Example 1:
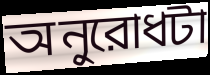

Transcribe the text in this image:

অনুরোধটা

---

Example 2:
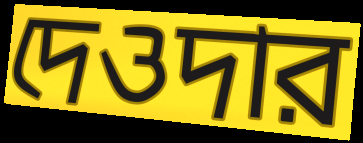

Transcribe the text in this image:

দেওদার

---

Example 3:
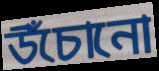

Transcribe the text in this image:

উঁচোনো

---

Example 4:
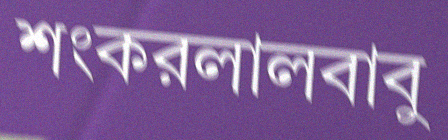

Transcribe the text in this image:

শংকরলালবাবু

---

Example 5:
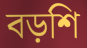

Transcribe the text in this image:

বড়শি